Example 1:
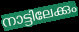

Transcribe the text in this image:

നാട്ടിലേക്കും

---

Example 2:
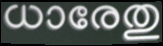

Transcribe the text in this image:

ധാരേതു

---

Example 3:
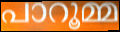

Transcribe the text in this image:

പാറൂമ്മ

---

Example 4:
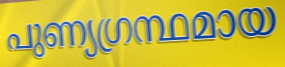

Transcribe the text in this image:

പുണ്യഗ്രന്ഥമായ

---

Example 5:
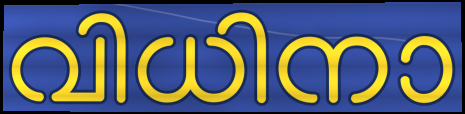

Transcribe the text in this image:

വിധിനാ